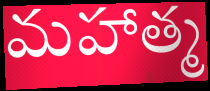
మహాత్మ